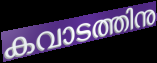
കവാടത്തിനു